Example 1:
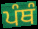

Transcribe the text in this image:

ਪੰਥੰ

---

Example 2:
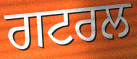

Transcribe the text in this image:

ਗਟਰਲ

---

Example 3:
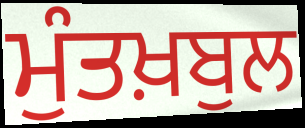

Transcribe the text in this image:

ਮੁੰਤਖ਼ਬੁਲ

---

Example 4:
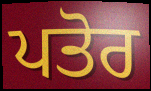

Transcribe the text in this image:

ਪਤੋਰ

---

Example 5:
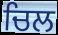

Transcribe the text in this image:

ਚਿਲ